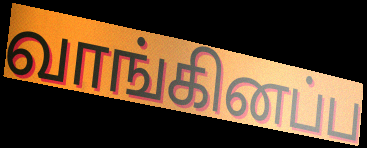
வாங்கினப்ப